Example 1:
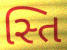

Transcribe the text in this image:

સ્તિ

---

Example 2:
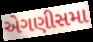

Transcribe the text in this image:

એગણીસમા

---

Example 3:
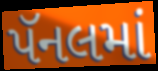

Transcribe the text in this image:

પૅનલમાં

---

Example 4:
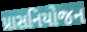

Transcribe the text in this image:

પ્રાસનિયોજન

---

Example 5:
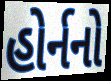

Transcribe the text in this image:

હોર્નનો